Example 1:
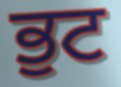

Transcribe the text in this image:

ਭੁਟ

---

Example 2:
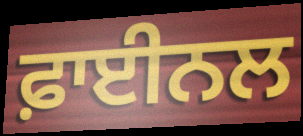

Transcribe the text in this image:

ਫ਼ਾਈਨਲ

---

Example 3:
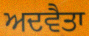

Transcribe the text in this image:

ਅਦਵੈਤਾ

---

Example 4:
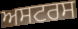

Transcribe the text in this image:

ਅਸਟਰਸ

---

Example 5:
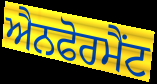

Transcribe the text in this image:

ਐਨਫੋਰਮੈਂਟ